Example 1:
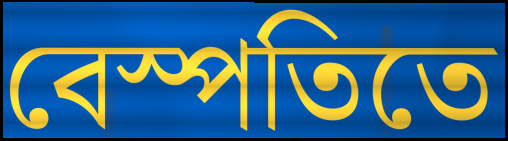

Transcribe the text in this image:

বেস্পতিতে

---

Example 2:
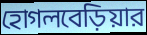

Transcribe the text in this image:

হোগলবেড়িয়ার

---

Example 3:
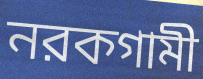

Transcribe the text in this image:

নরকগামী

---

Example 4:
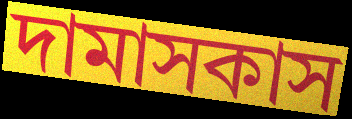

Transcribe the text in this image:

দামাসকাস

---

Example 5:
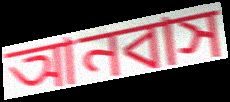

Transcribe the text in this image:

আনবাস